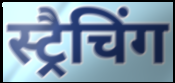
स्ट्रैचिंग